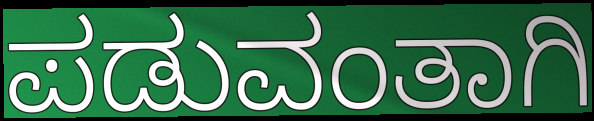
ಪಡುವಂತಾಗಿ